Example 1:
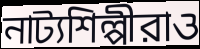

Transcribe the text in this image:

নাট্যশিল্পীরাও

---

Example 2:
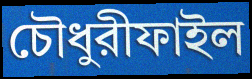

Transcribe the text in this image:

চৌধুরীফাইল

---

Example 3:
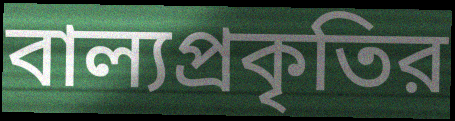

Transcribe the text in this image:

বাল্যপ্রকৃতির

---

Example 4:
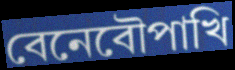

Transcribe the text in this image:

বেনেবৌপাখি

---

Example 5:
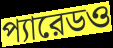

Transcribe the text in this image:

প্যারেডও